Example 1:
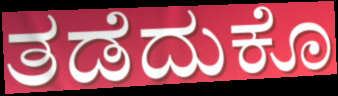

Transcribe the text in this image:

ತಡೆದುಕೊ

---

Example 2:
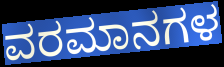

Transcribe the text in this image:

ವರಮಾನಗಳ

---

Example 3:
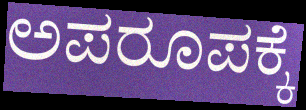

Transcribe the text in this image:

ಅಪರೂಪಕ್ಕೆ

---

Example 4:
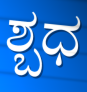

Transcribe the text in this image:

ಶ್ಬಧ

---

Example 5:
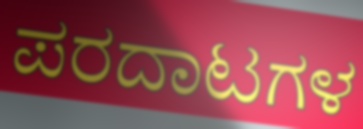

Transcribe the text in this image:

ಪರದಾಟಗಳ